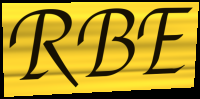
RBE